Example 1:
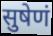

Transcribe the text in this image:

सुषेणं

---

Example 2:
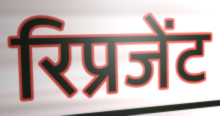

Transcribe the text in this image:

रिप्रजेंट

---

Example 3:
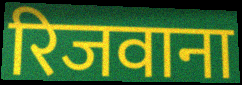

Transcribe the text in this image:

रिजवाना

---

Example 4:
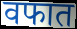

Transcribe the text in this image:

वफात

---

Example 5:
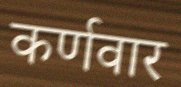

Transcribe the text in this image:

कर्णवार